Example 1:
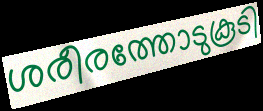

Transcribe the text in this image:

ശരീരത്തോടുകൂടി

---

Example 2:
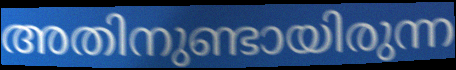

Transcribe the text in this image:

അതിനുണ്ടായിരുന്ന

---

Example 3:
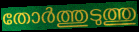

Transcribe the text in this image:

തോർത്തുടുത്തു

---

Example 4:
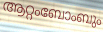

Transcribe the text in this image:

ആറ്റംബോംബും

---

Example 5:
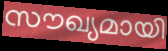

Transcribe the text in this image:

സൗഖ്യമായി